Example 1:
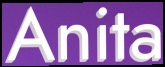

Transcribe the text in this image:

Anita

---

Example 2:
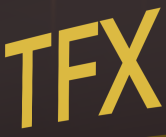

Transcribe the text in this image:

TFX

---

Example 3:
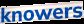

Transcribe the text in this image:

knowers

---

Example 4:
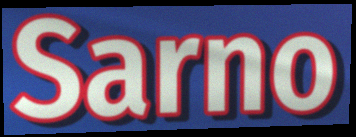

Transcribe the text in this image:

Sarno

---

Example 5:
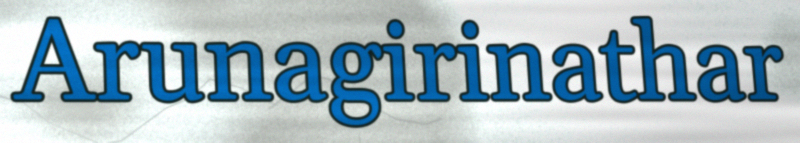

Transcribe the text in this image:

Arunagirinathar